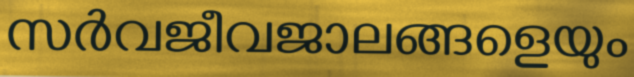
സർവജീവജാലങ്ങളെയും